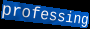
professing